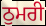
ਠੁਮਰੀ